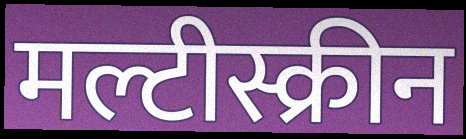
मल्टीस्क्रीन